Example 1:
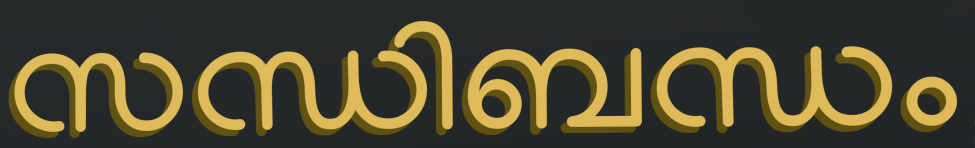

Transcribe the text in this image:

സന്ധിബന്ധം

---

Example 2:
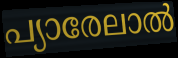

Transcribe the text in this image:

പ്യാരേലാൽ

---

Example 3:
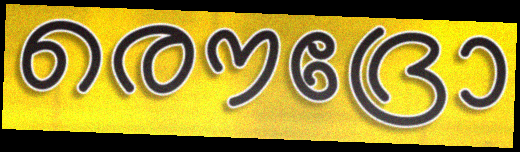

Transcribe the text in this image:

രൌദ്രോ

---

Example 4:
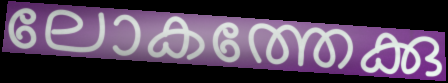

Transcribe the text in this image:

ലോകത്തേക്കു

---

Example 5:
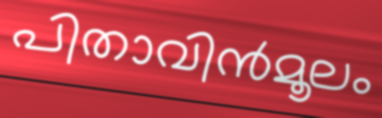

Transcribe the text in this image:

പിതാവിൻമൂലം